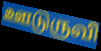
ஊடுருவி